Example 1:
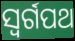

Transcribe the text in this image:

ସ୍ୱର୍ଗପଥ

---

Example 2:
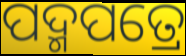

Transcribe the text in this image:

ପଦ୍ମପତ୍ରେ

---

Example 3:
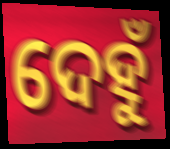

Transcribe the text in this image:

ଦେହୁଁ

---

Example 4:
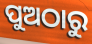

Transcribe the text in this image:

ପୁଅଠାରୁ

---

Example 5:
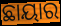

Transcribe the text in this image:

ଛାୟାର